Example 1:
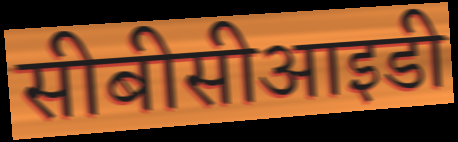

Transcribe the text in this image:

सीबीसीआइडी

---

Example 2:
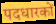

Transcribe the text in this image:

पदधारकों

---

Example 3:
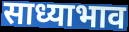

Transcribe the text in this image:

साध्याभाव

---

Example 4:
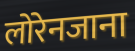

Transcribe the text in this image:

लोरेनजाना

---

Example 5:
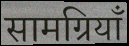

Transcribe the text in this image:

सामग्रियाँ